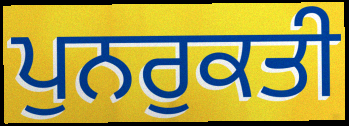
ਪੁਨਰੁਕਤੀ